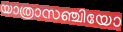
യാത്രാസഞ്ചിയോ